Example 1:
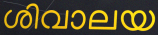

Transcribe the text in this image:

ശിവാലയ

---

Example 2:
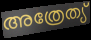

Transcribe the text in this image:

അത്രേത്യ്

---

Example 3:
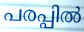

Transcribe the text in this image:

പരപ്പിൽ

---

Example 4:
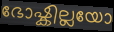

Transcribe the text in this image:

ഭോഷ്കില്ലയോ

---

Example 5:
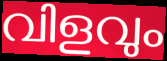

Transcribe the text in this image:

വിളവും